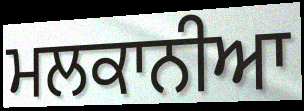
ਮਲਕਾਨੀਆ